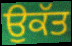
ਉਕੱਤ